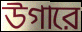
উগারে